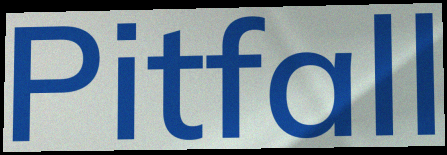
Pitfall